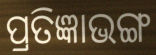
ପ୍ରତିଜ୍ଞାଭଙ୍ଗ